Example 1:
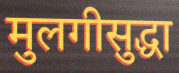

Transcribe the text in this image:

मुलगीसुद्धा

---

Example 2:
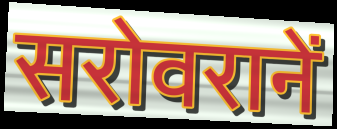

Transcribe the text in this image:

सरोवरानें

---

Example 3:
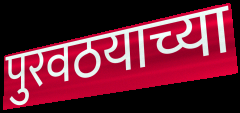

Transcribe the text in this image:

पुरवठयाच्या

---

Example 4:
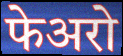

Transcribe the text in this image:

फेअरो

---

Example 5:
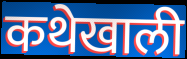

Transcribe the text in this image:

कथेखाली